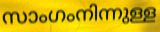
സാംഗംനിന്നുള്ള